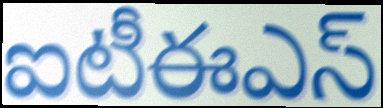
ఐటీఈఎస్